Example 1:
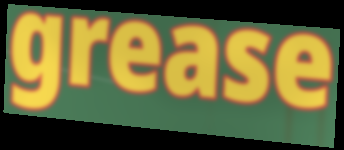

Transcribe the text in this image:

grease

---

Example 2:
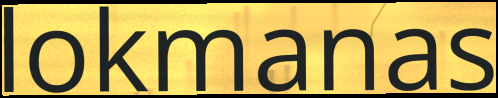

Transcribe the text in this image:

lokmanas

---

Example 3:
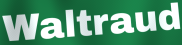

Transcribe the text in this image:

Waltraud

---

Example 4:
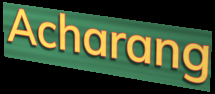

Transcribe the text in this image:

Acharang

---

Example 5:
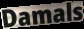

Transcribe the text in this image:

Damals